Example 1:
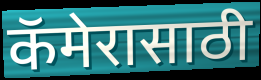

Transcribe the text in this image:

कॅमेरासाठी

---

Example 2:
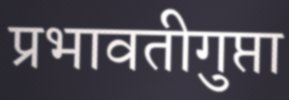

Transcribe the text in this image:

प्रभावतीगुप्ता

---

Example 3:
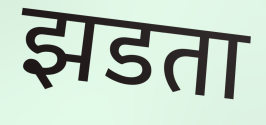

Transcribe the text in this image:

झडता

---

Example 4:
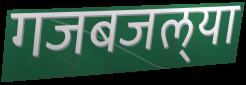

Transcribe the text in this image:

गजबजल्या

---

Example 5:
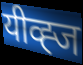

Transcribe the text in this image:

यीव्ह्ज